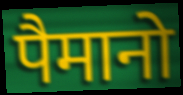
पैमानो